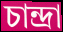
চান্দ্রা